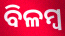
ବିଳମ୍ଵ